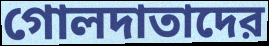
গোলদাতাদের